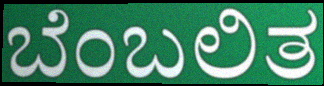
ಬೆಂಬಲಿತ